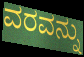
ವರವನ್ನು